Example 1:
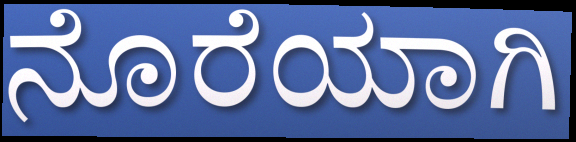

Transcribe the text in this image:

ನೊರೆಯಾಗಿ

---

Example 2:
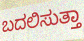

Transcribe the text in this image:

ಬದಲಿಸುತ್ತಾ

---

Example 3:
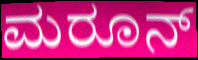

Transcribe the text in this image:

ಮರೂನ್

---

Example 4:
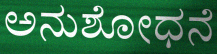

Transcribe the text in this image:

ಅನುಶೋಧನೆ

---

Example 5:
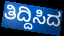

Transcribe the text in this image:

ತಿದ್ದಿಸಿದ